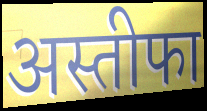
अस्तीफा